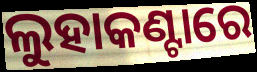
ଲୁହାକଣ୍ଟାରେ